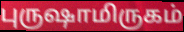
புருஷாமிருகம்